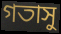
গতাসু